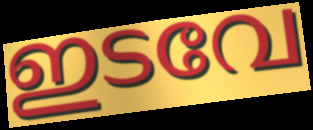
ഇടവേ